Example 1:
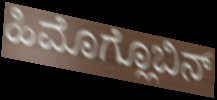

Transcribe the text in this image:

ಹಿಮೊಗ್ಲೊಬಿನ್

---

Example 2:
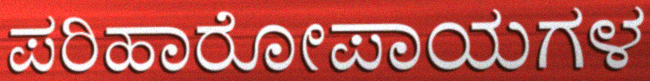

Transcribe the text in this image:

ಪರಿಹಾರೋಪಾಯಗಳ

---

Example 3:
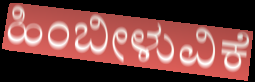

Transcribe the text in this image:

ಹಿಂಬೀಳುವಿಕೆ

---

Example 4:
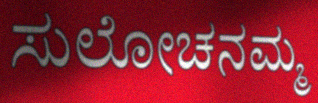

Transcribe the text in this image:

ಸುಲೋಚನಮ್ಮ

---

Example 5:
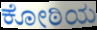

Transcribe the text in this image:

ಕೋಠಿಯ